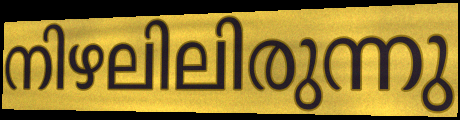
നിഴലിലിരുന്നു